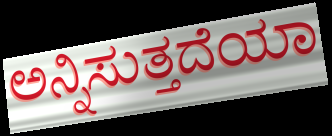
ಅನ್ನಿಸುತ್ತದೆಯಾ